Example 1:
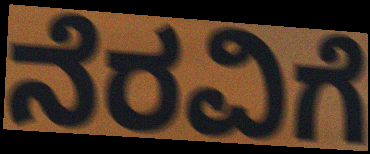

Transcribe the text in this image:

ನೆರವಿಗೆ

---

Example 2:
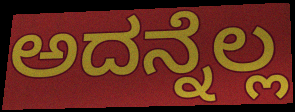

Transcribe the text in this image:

ಅದನ್ನೆಲ್ಲ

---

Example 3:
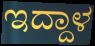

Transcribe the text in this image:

ಇದ್ದಾಳ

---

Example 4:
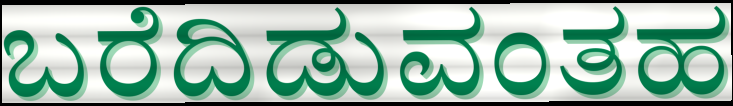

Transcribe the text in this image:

ಬರೆದಿಡುವಂತಹ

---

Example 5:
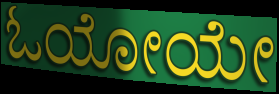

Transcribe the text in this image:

ಓಯೋಯೇ